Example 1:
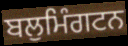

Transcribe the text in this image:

ਬਲੁਮਿੰਗਟਨ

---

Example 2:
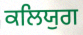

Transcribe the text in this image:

ਕਲਿਯੁਗ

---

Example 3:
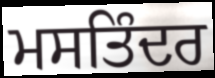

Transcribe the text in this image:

ਮਸਤਿੰਦਰ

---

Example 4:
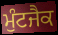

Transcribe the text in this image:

ਮੁੰਟਜੈਕ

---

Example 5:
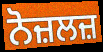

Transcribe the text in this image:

ਨੋਜ਼ਲਜ਼